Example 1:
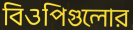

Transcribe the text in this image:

বিওপিগুলোর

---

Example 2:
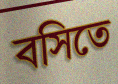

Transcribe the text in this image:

বসিতে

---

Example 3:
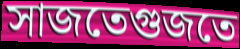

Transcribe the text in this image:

সাজতেগুজতে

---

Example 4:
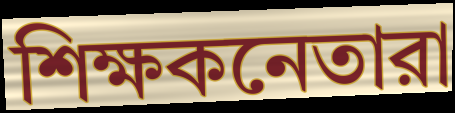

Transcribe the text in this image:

শিক্ষকনেতারা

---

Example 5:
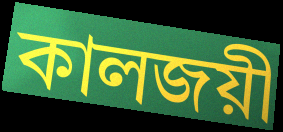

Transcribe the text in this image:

কালজয়ী